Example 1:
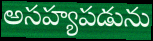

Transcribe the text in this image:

అసహ్యపడును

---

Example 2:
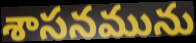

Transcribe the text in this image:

శాసనమును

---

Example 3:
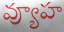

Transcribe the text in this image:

వ్యూహ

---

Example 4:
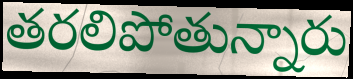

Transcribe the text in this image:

తరలిపోతున్నారు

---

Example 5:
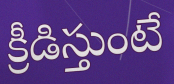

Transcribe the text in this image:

క్రీడిస్తుంటే